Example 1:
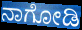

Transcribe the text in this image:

ನಾಗೋಡಿ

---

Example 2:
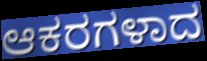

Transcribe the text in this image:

ಆಕರಗಳಾದ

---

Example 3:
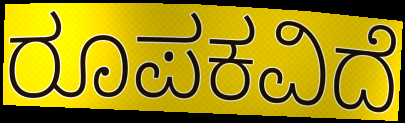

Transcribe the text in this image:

ರೂಪಕವಿದೆ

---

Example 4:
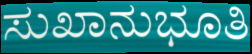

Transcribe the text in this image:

ಸುಖಾನುಭೂತಿ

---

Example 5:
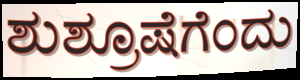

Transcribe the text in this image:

ಶುಶ್ರೂಷೆಗೆಂದು